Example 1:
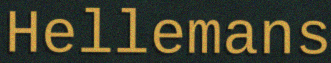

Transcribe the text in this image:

Hellemans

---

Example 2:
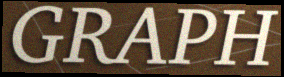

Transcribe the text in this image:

GRAPH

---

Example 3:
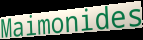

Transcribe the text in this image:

Maimonides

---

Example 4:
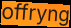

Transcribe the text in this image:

offryng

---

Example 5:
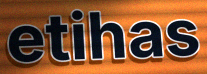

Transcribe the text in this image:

etihas